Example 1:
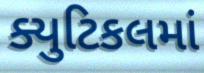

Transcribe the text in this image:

ક્યુટિકલમાં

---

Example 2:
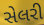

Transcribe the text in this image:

સેલરી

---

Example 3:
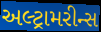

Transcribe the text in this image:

અલ્ટ્રામરીન્સ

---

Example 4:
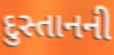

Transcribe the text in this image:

દુસ્તાનની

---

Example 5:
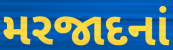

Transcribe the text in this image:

મરજાદનાં